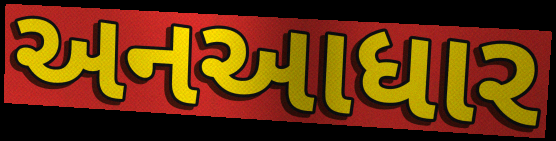
અનઆધાર